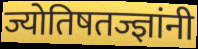
ज्योतिषतज्ज्ञांनी